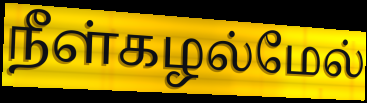
நீள்கழல்மேல்